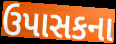
ઉપાસકના